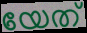
യേത്